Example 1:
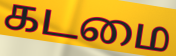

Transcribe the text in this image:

கடமை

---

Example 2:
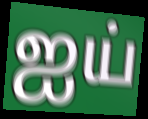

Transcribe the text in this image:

ஐய்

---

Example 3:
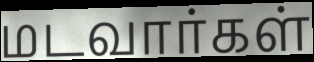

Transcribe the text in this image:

மடவார்கள்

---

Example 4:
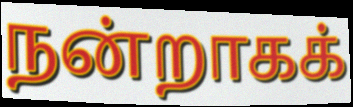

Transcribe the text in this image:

நன்றாகக்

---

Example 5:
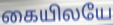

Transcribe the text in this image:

கையிலயே